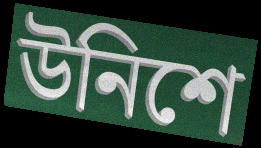
উনিশে